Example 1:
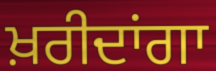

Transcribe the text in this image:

ਖ਼ਰੀਦਾਂਗਾ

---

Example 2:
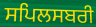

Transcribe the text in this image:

ਸਪਿਲਸਬਰੀ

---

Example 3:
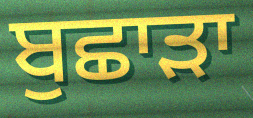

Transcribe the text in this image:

ਬੁਛਾੜਾ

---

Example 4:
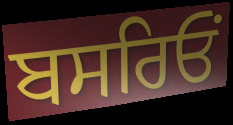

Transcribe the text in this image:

ਬਸਰਿਓਂ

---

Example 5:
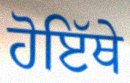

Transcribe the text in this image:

ਹੋਇੱਥੇ